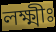
লক্ষ্মীঃ